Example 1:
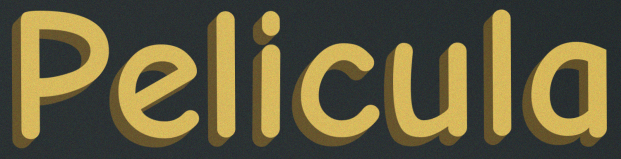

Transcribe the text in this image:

Pelicula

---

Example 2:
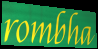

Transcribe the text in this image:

rombha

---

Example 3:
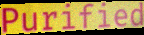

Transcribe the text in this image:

Purified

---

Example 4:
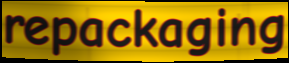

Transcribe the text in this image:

repackaging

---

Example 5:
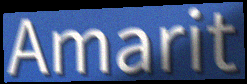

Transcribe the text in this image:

Amarit